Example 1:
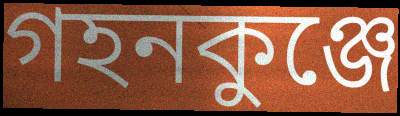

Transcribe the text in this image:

গহনকুঞ্জে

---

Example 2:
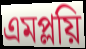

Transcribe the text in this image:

এমপ্লয়ি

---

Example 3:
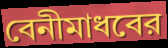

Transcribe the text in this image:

বেনীমাধবের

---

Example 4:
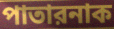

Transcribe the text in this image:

পাতারনাক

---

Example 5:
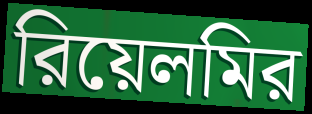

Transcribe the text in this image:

রিয়েলমির